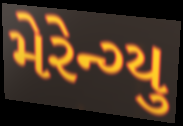
મેરેન્ગ્યુ